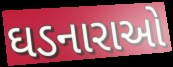
ઘડનારાઓ